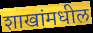
शाखांमधील